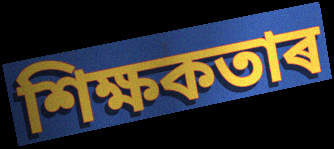
শিক্ষকতাৰ